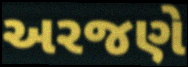
અરજણે